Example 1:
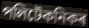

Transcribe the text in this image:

পলিটেকনিকৰ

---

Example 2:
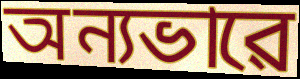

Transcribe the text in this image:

অন্যভাৱে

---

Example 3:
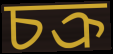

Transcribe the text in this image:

চক্ৰ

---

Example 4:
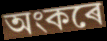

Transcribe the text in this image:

অংকৰে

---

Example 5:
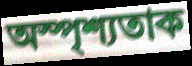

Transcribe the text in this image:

অস্পৃশ্যতাক